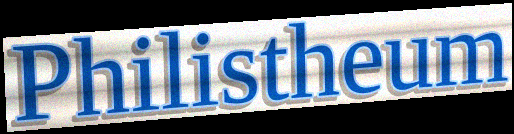
Philistheum